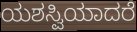
ಯಶಸ್ವಿಯಾದರೆ